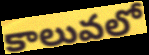
కాలువలో